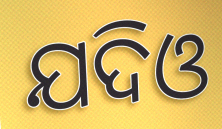
ଯଦିଓ